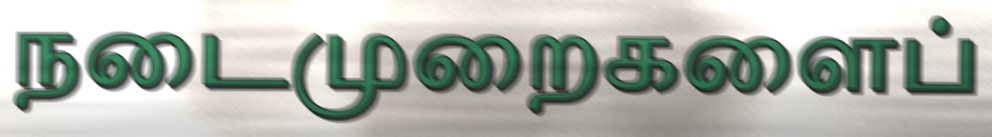
நடைமுறைகளைப்